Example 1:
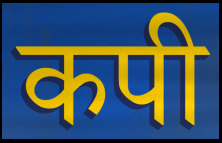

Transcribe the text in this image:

कपी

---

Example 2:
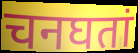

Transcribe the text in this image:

चनघतां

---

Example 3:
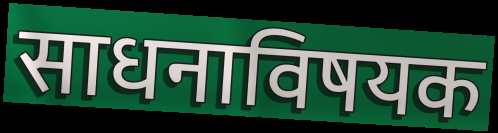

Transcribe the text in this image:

साधनाविषयक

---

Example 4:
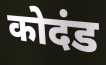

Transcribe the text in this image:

कोदंड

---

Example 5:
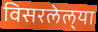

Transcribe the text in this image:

विसरलेल्या